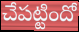
చేపట్టిందో